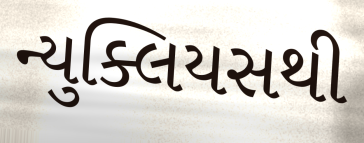
ન્યુક્લિયસથી